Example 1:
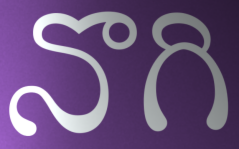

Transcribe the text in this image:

నొగి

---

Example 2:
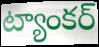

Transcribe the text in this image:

ట్యాంకర్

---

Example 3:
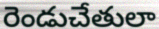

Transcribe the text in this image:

రెండుచేతులా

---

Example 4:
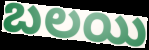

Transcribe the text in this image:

బలయి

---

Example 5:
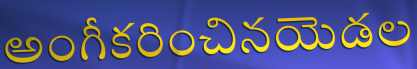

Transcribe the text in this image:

అంగీకరించినయెడల